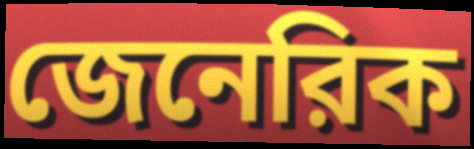
জেনেরিক